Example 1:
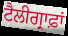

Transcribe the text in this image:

ਟੈਲੀਗ੍ਰਾਫ਼ਾਂ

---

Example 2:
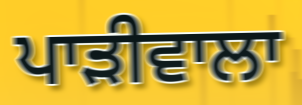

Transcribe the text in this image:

ਪਾੜੀਵਾਲਾ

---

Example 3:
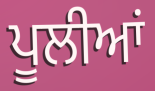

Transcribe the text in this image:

ਪੂਲੀਆਂ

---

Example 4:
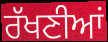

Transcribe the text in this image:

ਰੱਖਣੀਆਂ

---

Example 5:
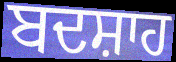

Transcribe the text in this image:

ਬਦਸ਼ਾਹ